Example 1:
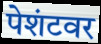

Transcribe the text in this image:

पेशंटवर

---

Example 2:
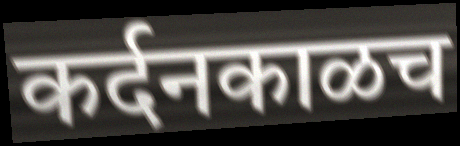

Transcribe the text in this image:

कर्दनकाळच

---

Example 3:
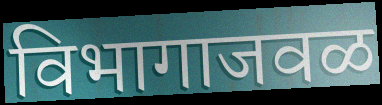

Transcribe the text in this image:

विभागाजवळ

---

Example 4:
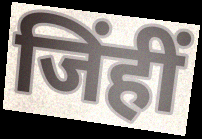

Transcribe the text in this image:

जिंहीं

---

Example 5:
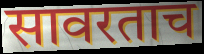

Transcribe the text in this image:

सावरताच